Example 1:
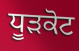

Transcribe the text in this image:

ਧੂੜਕੋਟ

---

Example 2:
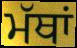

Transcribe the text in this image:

ਮੱਥਾਂ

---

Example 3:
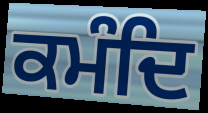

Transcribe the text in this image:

ਕਮੰਦਿ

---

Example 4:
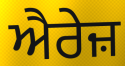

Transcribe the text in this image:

ਐਰੇਜ਼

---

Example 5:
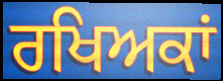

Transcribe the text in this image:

ਰਖਿਅਕਾਂ